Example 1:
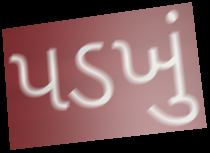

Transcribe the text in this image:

પડખું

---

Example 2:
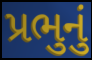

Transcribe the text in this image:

પ્રભુનું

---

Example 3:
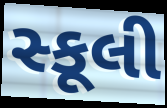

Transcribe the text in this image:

સ્કૂલી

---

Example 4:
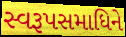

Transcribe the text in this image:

સ્વરૂપસમાધિને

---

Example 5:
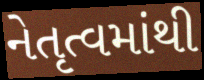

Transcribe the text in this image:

નેતૃત્વમાંથી